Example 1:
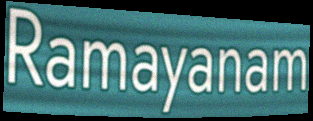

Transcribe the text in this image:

Ramayanam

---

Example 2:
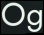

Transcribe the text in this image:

Og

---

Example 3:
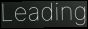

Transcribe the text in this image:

Leading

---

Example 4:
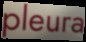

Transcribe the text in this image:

pleura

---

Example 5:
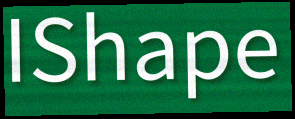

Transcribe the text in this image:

IShape